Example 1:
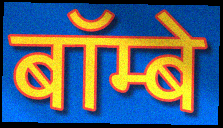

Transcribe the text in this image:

बॉम्‍बे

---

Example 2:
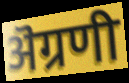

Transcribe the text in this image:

ऄग्रणी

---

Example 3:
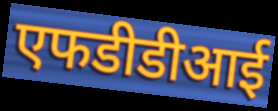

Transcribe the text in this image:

एफडीडीआई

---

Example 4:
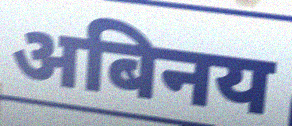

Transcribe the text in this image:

अबिनय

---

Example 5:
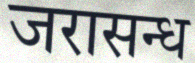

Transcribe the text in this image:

जरासन्ध